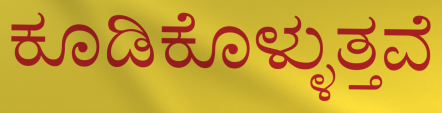
ಕೂಡಿಕೊಳ್ಳುತ್ತವೆ